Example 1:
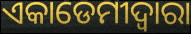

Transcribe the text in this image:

ଏକାଡେମୀଦ୍ୱାରା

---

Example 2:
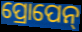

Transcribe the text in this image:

ପ୍ରୋପେନ୍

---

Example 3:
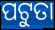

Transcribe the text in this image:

ପଟୁତା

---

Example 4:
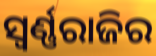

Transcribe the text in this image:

ସ୍ଵର୍ଣ୍ଣରାଜିର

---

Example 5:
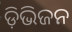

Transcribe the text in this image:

ଡ଼ିଭିଜନ